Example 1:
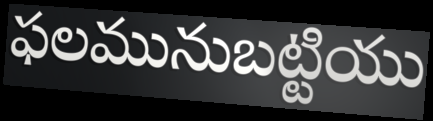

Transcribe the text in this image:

ఫలమునుబట్టియు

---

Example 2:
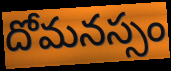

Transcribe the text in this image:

దోమనస్సం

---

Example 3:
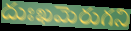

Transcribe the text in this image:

దుఃఖమెరుగని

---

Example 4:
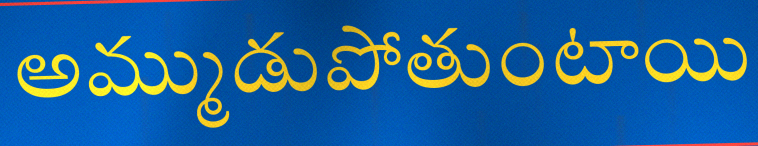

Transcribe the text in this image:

అమ్ముడుపోతుంటాయి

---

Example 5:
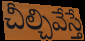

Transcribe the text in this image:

చీల్చివేస్తే